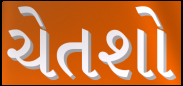
ચેતશો